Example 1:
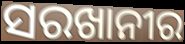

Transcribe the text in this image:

ସରଖାନୀର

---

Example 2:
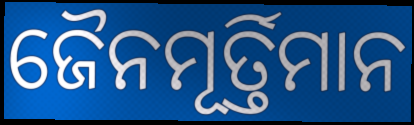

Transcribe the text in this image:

ଜୈନମୂର୍ତ୍ତିମାନ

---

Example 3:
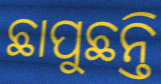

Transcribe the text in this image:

ଛାପୁଛନ୍ତି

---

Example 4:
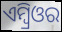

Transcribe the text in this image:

ଏମ୍ବ୍ରିଓର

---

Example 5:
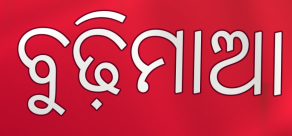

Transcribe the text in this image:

ବୁଢ଼ିମାଆ